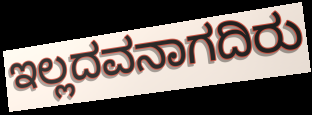
ಇಲ್ಲದವನಾಗದಿರು